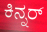
ಕಿನ್ನರ್